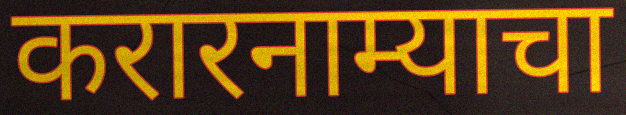
करारनाम्याचा